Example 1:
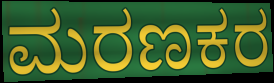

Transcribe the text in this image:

ಮರಣಕರ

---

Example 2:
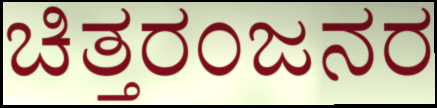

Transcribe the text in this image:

ಚಿತ್ತರಂಜನರ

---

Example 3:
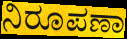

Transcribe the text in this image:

ನಿರೂಪಣಾ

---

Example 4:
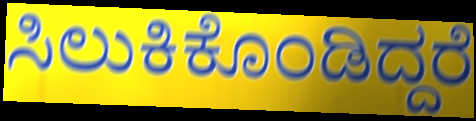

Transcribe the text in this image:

ಸಿಲುಕಿಕೊಂಡಿದ್ದರೆ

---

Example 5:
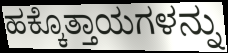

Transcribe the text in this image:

ಹಕ್ಕೊತ್ತಾಯಗಳನ್ನು